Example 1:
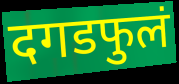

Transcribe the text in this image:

दगडफुलं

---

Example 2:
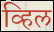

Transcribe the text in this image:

व्हिल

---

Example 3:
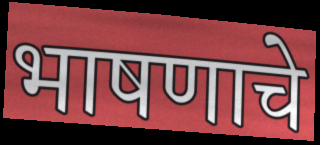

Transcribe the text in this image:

भाषणाचे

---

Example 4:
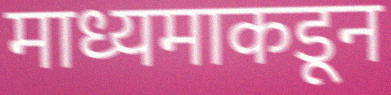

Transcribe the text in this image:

माध्यमाकडून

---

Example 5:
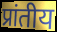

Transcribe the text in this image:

प्रांतीय